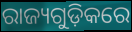
ରାଜ୍ୟଗୁଡ଼ିକରେ